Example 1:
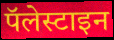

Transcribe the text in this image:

पॅलेस्टाइन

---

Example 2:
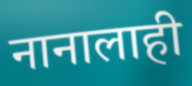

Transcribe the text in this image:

नानालाही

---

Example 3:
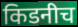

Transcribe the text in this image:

किडनीच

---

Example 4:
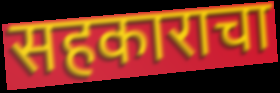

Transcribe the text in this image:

सहकाराचा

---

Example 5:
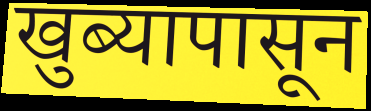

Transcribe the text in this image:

खुब्यापासून